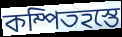
কম্পিতহস্তে